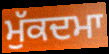
ਮੁੱਕਦਮਾ